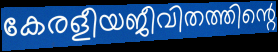
കേരളീയജീവിതത്തിന്റെ